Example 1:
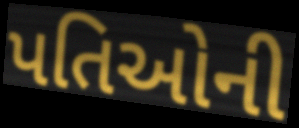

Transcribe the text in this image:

પતિઓની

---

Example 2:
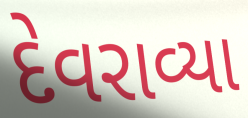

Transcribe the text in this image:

દેવરાવ્યા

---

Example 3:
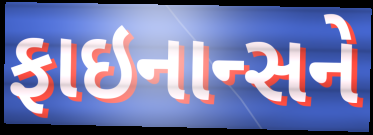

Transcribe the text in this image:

ફાઇનાન્સને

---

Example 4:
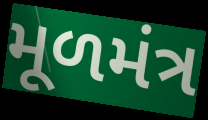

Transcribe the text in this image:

મૂળમંત્ર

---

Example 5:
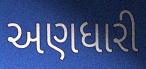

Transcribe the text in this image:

અણધારી